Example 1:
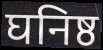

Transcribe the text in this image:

घनिष्ठ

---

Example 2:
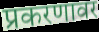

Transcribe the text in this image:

प्रकरणावर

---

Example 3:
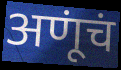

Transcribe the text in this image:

अणूंचं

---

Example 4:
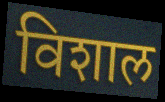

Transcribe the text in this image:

विशाल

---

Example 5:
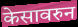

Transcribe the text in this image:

केसावरुन